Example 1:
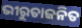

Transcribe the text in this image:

ଭୀରୁତାଜନିତ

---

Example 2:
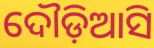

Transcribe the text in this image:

ଦୌଡ଼ିଆସି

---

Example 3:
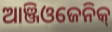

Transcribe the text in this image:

ଆଞ୍ଜିଓଜେନିକ୍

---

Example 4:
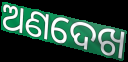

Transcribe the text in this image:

ଅଣଦେଖ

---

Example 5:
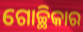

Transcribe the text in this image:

ଗୋଚ୍ଛିକାର